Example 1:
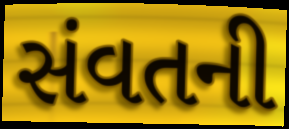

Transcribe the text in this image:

સંવતની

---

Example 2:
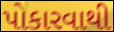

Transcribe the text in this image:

પોકારવાથી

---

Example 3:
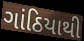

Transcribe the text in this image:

ગાંઠિયાથી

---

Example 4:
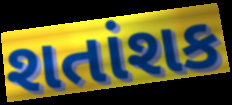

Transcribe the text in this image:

શતાંશક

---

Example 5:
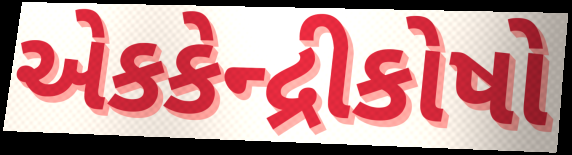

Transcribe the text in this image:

એકકેન્દ્રીકોષો